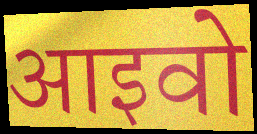
आइवो